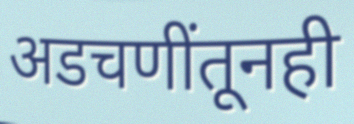
अडचणींतूनही